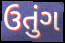
ઉતુંગ